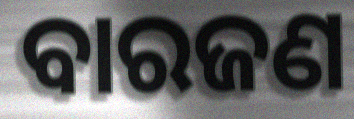
ବାରଜଣ